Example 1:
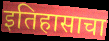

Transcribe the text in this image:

इतिहासाचा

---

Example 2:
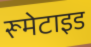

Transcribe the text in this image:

रूमेटाइड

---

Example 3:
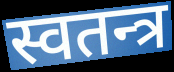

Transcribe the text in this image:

स्वतन्त्र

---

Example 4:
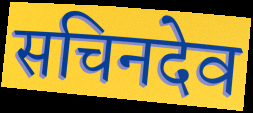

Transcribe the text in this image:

सचिनदेव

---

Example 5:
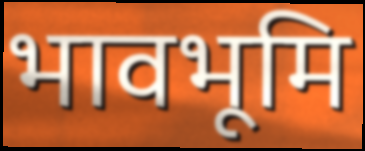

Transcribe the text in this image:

भावभूमि